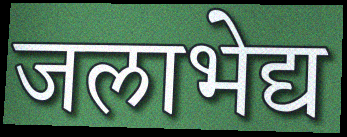
जलाभेद्य